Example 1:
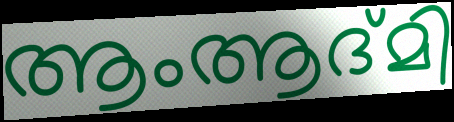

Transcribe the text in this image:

ആംആദ്മി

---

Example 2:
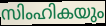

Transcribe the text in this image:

സിംഹികയും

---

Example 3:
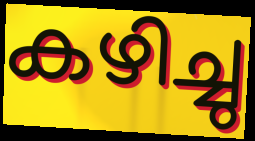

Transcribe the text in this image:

കഴിച്ചു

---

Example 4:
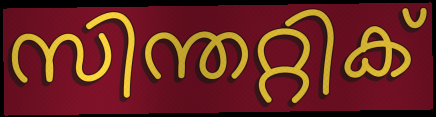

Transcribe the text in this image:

സിന്തറ്റിക്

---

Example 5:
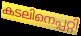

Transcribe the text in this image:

കടലിനെപ്പറ്റി